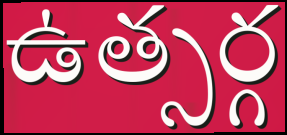
ఉత్సర్గ